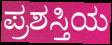
ಪ್ರಶಸ್ತಿಯ